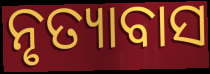
ନୃତ୍ୟାବାସ